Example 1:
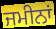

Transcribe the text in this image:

ਜਮੀਨਾਂ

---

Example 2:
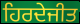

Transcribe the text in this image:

ਹਿਰਦੇਜੀਤ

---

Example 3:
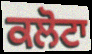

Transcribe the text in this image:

ਕਲੋਟਾ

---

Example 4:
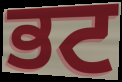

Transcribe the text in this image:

ਭਟ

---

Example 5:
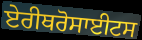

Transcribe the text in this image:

ਏਰੀਥਰੋਸਾਈਟਸ